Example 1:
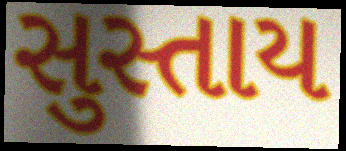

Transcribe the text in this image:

સુસ્તાય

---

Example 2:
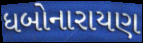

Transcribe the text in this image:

ધબોનારાયણ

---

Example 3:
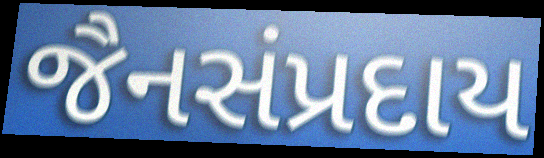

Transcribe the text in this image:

જૈનસંપ્રદાય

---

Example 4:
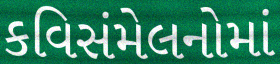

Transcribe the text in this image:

કવિસંમેલનોમાં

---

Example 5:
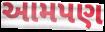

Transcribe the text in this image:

આમપણ